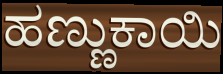
ಹಣ್ಣುಕಾಯಿ